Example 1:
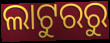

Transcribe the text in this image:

ଲାଟୁରରୁ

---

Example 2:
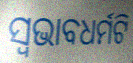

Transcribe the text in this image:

ସ୍ଵଭାବଧର୍ମଟି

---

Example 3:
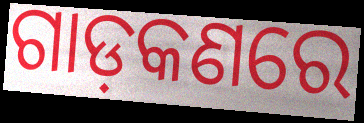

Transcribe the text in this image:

ଗାଡ଼କଣରେ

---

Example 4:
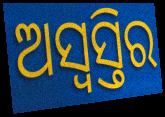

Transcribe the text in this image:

ଅସ୍ୱସ୍ତିର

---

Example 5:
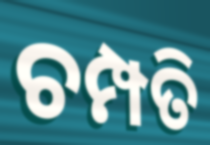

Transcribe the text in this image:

ଚମ୍ପତି